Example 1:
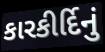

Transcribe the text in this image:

કારકીર્દિનું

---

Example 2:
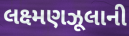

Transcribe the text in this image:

લક્ષ્મણઝૂલાની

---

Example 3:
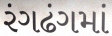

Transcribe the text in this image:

રંગઢંગમાં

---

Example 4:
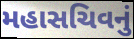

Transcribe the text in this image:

મહાસચિવનું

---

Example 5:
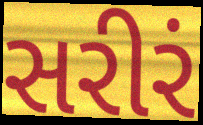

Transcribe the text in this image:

સરીરં